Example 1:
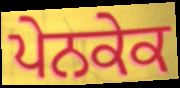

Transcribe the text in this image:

ਪੇਨਕੇਕ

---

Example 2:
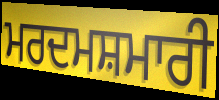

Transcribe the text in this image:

ਮਰਦਮਸ਼ਮਾਰੀ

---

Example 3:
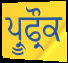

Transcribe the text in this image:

ਪ੍ਰੂਫ੍ਰੌਕ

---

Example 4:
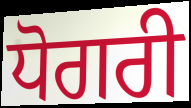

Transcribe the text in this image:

ਧੋਗਰੀ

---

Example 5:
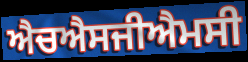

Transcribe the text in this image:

ਐਚਐਸਜੀਐਮਸੀ